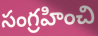
సంగ్రహించి